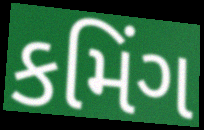
કમિંગ